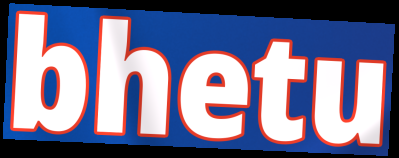
bhetu